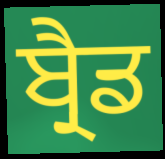
ਬ੍ਰੈਡ